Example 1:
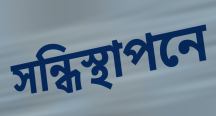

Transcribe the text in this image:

সন্ধিস্থাপনে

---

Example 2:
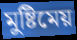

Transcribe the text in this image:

মুষ্টিমেয়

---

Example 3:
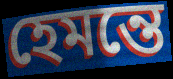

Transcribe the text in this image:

হেমন্তে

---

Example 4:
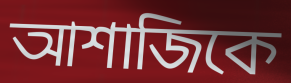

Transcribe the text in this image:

আশাজিকে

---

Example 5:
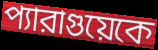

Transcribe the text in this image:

প্যারাগুয়েকে